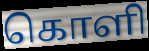
கொளி